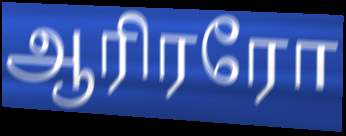
ஆரிரரோ